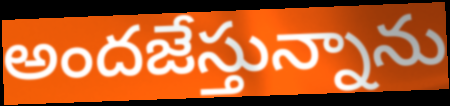
అందజేస్తున్నాను